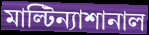
মাল্টিন্যাশানাল